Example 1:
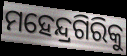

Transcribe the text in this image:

ମହେନ୍ଦ୍ରଗିରିକୁ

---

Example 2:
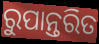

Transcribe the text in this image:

ରୁପାନ୍ତରିତ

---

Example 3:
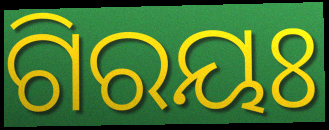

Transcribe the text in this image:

ଗିରୟଃ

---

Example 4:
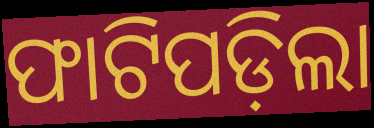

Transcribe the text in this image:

ଫାଟିପଡ଼ିଲା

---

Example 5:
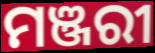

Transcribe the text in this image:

ମଞ୍ଜରୀ